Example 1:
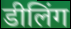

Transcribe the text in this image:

डीलिंग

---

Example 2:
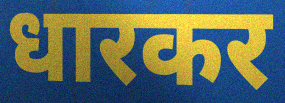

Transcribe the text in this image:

धारकर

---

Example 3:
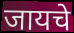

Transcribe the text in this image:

जायचे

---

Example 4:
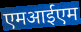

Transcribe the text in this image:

एमआईएम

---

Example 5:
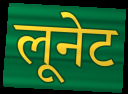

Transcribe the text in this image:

लूनेट